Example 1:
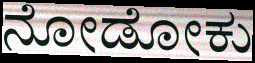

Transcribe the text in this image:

ನೋಡೋಕು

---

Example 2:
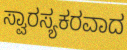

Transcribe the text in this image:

ಸ್ವಾರಸ್ಯಕರವಾದ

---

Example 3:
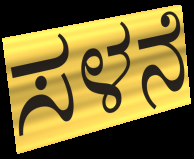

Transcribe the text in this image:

ಸಳನೆ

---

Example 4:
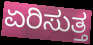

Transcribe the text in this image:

ಏರಿಸುತ್ತ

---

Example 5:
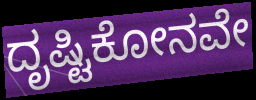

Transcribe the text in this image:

ದೃಷ್ಟಿಕೋನವೇ